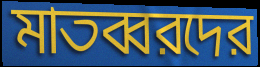
মাতব্বরদের